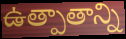
ఉత్పాతాన్ని